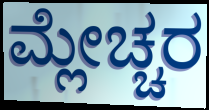
ಮ್ಲೇಚ್ಚರ